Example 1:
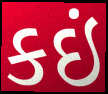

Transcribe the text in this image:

કઇં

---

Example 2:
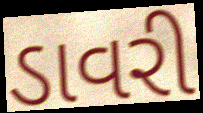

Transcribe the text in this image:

ડાવરી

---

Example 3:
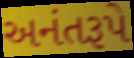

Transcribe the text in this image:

અનંતરૂપે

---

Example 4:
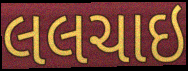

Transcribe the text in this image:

લલચાઇ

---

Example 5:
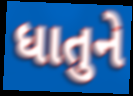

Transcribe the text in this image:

ધાતુને